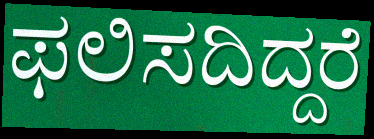
ಫಲಿಸದಿದ್ದರೆ